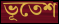
ভূতেশ